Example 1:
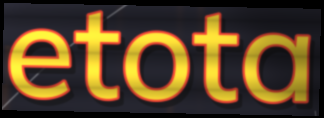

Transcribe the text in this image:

etota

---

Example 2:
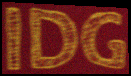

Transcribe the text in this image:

IDG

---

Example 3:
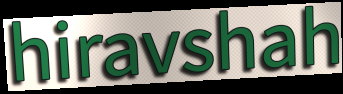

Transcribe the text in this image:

hiravshah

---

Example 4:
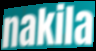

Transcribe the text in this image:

nakila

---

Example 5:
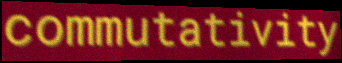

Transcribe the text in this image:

commutativity